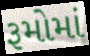
રૂમોમાં